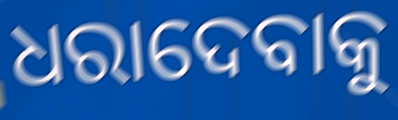
ଧରାଦେବାକୁ